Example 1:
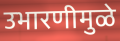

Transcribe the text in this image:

उभारणीमुळे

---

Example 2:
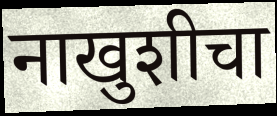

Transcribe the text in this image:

नाखुशीचा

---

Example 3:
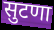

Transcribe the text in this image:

सुटणा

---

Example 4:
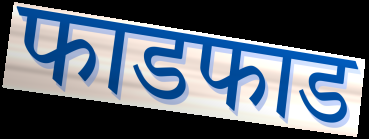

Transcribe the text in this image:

फाडफाड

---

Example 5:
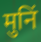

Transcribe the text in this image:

मुनिं